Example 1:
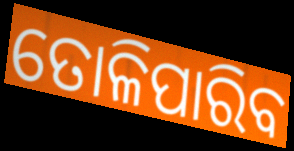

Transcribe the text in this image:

ତୋଳିପାରିବ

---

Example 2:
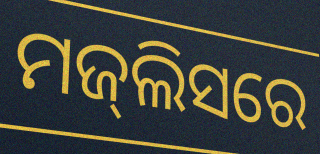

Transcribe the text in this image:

ମଜ୍‍ଲିସରେ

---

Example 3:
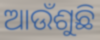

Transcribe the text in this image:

ଆଉଁଶୁଛି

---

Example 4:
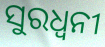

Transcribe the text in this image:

ସୁରଧ୍ୱନୀ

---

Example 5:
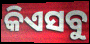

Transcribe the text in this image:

କିଏସବୁ